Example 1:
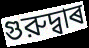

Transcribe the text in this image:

গুৰুদ্বাৰ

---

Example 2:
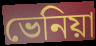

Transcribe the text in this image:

ভেনিয়া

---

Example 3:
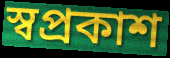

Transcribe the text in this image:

স্বপ্ৰকাশ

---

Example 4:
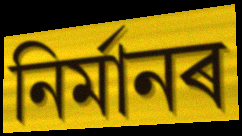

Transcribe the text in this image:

নিৰ্মানৰ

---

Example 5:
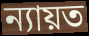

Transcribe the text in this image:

ন্যায়ত